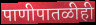
पाणीपातळीही